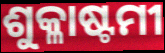
ଶୁକ୍ଳାଷ୍ଟମୀ